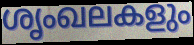
ശൃംഖലകളും